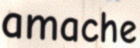
amache